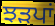
ਝੜਪਾਂ